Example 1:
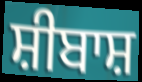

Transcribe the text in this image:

ਸ਼ੀਬਾਸ਼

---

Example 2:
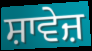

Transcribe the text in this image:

ਸ਼ਾਵੇਜ਼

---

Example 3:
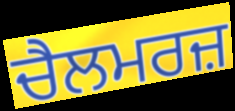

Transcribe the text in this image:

ਚੈਲਮਰਜ਼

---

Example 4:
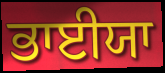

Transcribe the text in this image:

ਭਾਈਯਾ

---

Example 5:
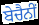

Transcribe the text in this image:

ਬੇਚੈਨੀਂ